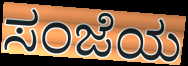
ಸಂಜೆಯ